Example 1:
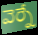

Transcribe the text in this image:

వెర్నే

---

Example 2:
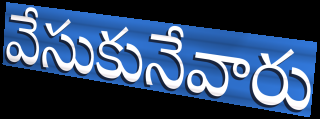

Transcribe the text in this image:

వేసుకునేవారు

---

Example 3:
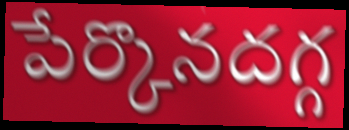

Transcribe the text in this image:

పేర్కొనదగ్గ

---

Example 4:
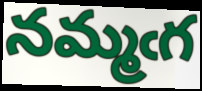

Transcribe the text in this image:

నమ్మఁగ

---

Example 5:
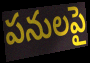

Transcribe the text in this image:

పనులపై